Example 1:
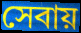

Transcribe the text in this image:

সেবায়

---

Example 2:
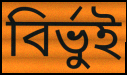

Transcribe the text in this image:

বির্ভুই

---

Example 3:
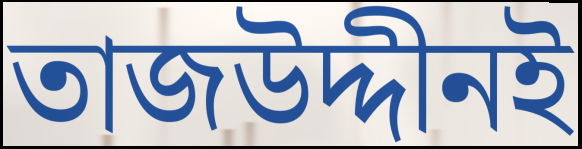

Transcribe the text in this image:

তাজউদ্দীনই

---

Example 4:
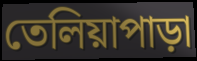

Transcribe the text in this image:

তেলিয়াপাড়া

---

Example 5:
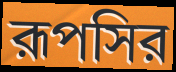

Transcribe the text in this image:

রূপসির